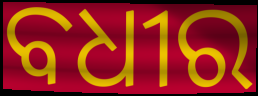
ବଧୀର